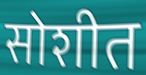
सोशीत